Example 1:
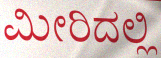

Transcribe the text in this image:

ಮೀರಿದಲ್ಲಿ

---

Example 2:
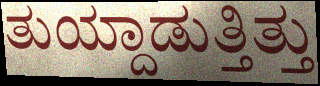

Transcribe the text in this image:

ತುಯ್ದಾಡುತ್ತಿತ್ತು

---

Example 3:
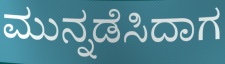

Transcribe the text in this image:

ಮುನ್ನಡೆಸಿದಾಗ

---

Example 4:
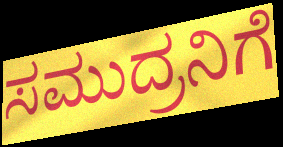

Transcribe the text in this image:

ಸಮುದ್ರನಿಗೆ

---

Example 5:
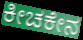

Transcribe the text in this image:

ಕೀಚಕೇನ